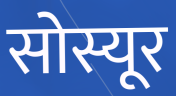
सोस्यूर